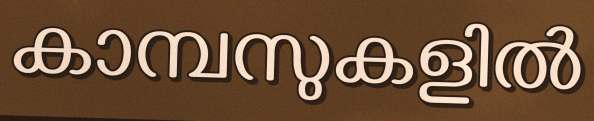
കാമ്പസുകളിൽ